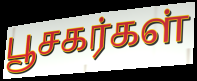
பூசகர்கள்